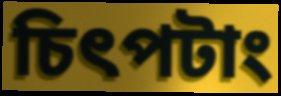
চিৎপটাং